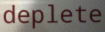
deplete